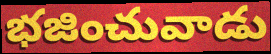
భజించువాడు